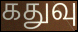
கதுவு